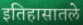
इतिहासातले